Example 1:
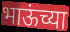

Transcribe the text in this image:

भाऊंच्या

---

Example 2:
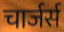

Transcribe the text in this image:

चार्जर्स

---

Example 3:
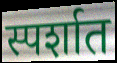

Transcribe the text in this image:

स्पर्शात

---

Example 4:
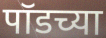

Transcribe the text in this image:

पॉडच्या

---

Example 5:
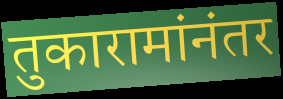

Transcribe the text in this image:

तुकारामांनंतर